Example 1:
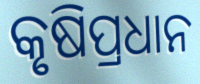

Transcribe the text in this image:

କୃଷିପ୍ରଧାନ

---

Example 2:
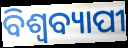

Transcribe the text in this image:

ବିଶ୍ଵବ୍ୟାପୀ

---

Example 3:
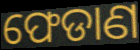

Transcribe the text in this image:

ଫେଡାଣ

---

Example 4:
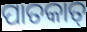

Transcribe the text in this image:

ପାତକାତ୍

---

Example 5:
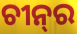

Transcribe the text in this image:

ଚୀନ୍‌ର